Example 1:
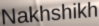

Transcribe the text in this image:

Nakhshikh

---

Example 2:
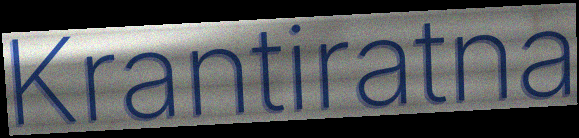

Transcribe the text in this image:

Krantiratna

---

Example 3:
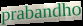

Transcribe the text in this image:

prabandho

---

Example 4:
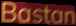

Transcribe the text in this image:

Bastan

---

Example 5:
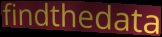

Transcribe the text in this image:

findthedata